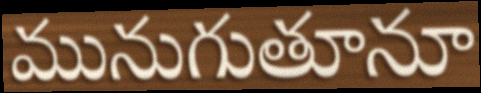
మునుగుతూనూ